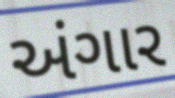
અંગાર